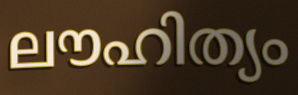
ലൗഹിത്യം